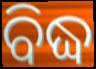
ବିଦ୍ଧ